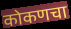
कोकणचा